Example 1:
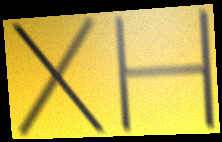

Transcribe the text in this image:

XH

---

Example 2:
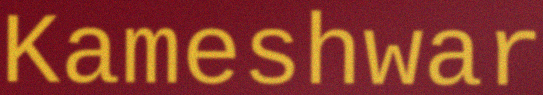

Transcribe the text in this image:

Kameshwar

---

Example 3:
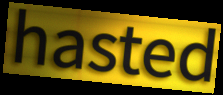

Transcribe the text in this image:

hasted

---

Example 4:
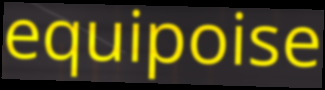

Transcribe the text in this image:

equipoise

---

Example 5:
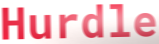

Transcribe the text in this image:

Hurdle